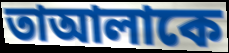
তাআলাকে